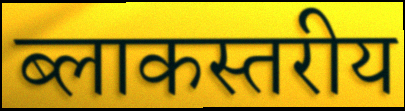
ब्लाकस्तरीय